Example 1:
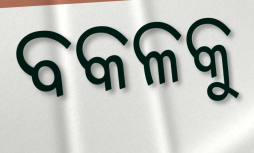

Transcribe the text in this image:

ବକଳକୁ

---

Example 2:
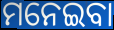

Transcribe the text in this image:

ମନେଇବା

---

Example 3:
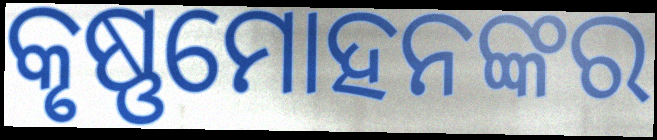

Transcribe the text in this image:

କୃଷ୍ଣମୋହନଙ୍କର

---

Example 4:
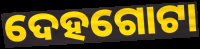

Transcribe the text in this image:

ଦେହଗୋଟା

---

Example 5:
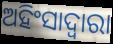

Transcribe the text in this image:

ଅହିଂସାଦ୍ୱାରା